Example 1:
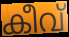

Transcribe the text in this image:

കീവ്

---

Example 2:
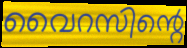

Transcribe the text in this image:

വൈറസിന്റെ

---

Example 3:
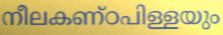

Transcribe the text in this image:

നീലകണ്ഠപിള്ളയും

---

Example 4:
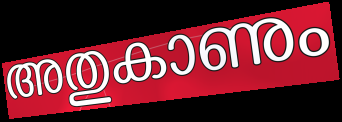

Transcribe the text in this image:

അതുകാണും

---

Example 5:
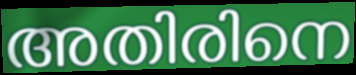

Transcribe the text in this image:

അതിരിനെ